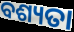
ବଶ୍ୟତା